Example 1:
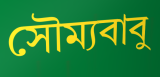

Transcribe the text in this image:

সৌম্যবাবু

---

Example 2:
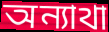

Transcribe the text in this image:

অন্যাথা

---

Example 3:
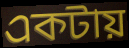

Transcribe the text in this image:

একটায়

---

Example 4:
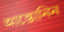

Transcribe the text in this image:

আন্তোনিন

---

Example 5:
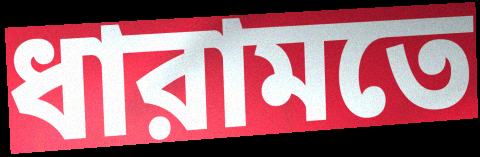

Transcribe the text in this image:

ধারামতে